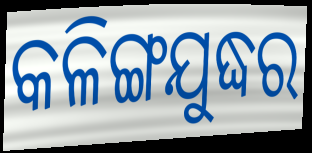
କଳିଙ୍ଗଯୁଦ୍ଧର